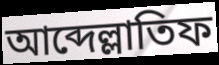
আব্দেল্লাতিফ